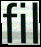
fil